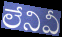
లేనివీ